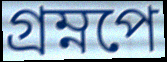
গ্রম্নপে